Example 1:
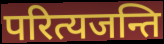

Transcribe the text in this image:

परित्यजन्ति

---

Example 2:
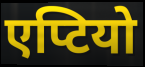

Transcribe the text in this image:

एप्टियो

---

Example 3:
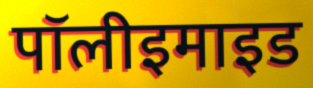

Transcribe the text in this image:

पॉलीइमाइड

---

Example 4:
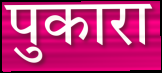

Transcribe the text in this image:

पुकारा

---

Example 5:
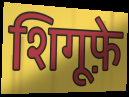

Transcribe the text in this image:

शिगूफ़े